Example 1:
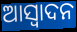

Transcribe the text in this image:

ଆସ୍ଵାଦନ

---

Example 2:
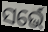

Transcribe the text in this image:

ସର୍ଭେ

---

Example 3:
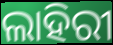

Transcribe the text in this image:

ଲାହିରୀ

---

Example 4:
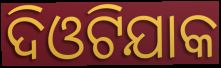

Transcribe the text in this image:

ଦିଓଟିଯାକ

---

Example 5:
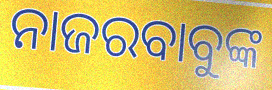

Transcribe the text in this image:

ନାଜରବାବୁଙ୍କ